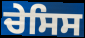
ਚੇਸਿਸ